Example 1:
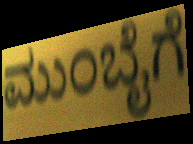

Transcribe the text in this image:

ಮುಂಬೈಗೆ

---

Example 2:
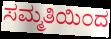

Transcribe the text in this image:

ಸಮ್ಮತಿಯಿಂದ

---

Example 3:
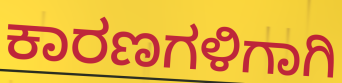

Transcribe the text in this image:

ಕಾರಣಗಳಿಗಾಗಿ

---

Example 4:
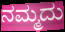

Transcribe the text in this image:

ನಮ್ಮದು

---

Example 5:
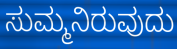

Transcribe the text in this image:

ಸುಮ್ಮನಿರುವುದು